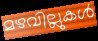
മഴവില്ലുകൾ